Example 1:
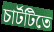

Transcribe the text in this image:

চার্টটিতে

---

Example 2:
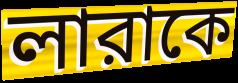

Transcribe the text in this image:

লারাকে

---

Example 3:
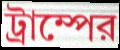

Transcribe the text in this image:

ট্রাম্পের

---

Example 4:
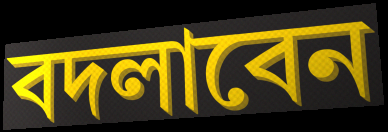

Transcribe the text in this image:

বদলাবেন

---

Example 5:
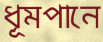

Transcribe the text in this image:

ধূমপানে